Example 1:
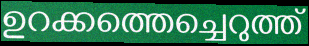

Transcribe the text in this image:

ഉറക്കത്തെച്ചെറുത്ത്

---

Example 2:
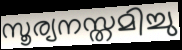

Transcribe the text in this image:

സൂര്യനസ്തമിച്ചു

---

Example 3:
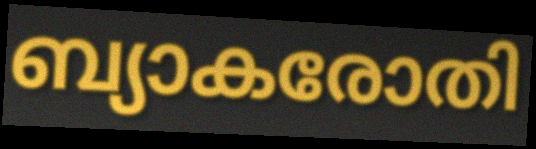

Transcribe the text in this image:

ബ്യാകരോതി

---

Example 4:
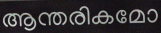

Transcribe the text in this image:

ആന്തരികമോ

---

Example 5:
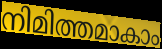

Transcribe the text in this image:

നിമിത്തമാകാം